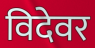
विदेवर